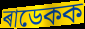
ৰাডেকক